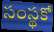
సంస్థకో